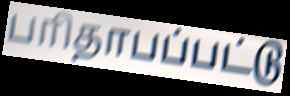
பரிதாபப்பட்டு